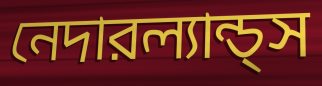
নেদারল্যান্ড্‌স